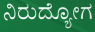
ನಿರುದ್ಯೋಗ